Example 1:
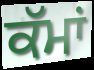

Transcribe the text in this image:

ਕੱਮਾਂ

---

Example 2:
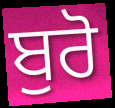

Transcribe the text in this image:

ਬੁਰੋ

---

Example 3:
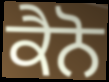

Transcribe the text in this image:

ਕੈਨੋ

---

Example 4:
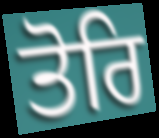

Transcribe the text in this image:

ਤੋਰਿ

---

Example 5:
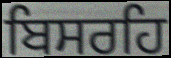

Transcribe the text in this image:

ਬਿਸਰਹਿ